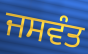
ਜਸਵੰਤ